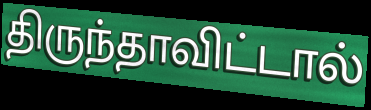
திருந்தாவிட்டால்